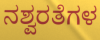
ನಶ್ವರತೆಗಳ